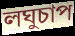
লঘুচাপ